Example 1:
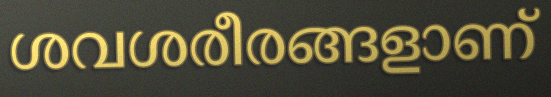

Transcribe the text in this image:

ശവശരീരങ്ങളാണ്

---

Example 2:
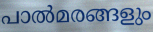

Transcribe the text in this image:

പാൽമരങ്ങളും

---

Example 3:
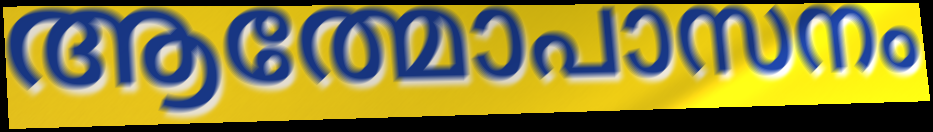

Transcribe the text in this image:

ആത്മോപാസനം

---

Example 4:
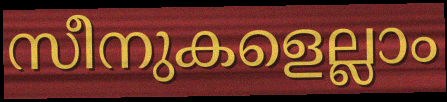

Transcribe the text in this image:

സീനുകളെല്ലാം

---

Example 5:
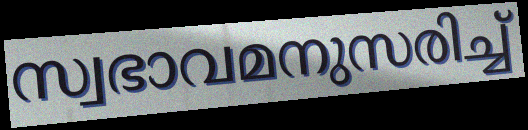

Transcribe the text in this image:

സ്വഭാവമനുസരിച്ച്